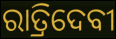
ରାତ୍ରିଦେବୀ